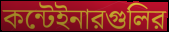
কন্টেইনারগুলির